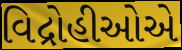
વિદ્રોહીઓએ